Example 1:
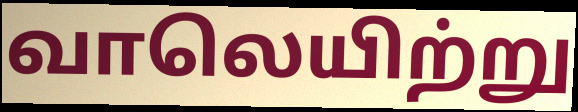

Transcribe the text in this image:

வாலெயிற்று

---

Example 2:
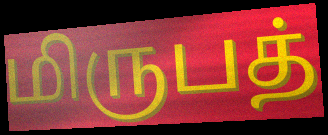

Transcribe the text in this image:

மிருபத்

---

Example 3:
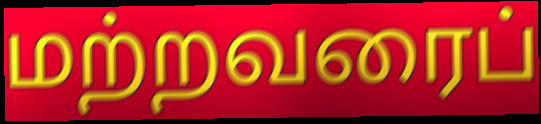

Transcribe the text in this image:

மற்றவரைப்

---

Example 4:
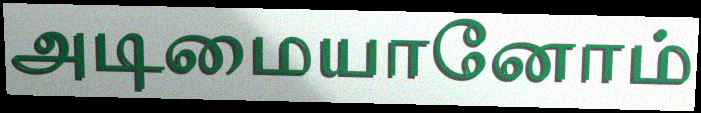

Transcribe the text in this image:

அடிமையானோம்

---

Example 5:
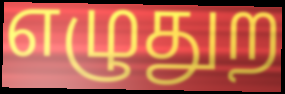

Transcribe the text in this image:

எழுதுற